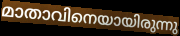
മാതാവിനെയായിരുന്നു